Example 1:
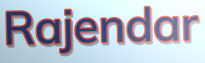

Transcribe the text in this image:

Rajendar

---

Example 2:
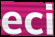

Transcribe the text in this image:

eci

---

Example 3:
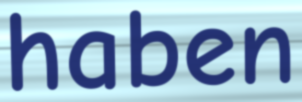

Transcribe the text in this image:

haben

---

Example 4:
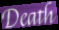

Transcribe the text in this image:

Death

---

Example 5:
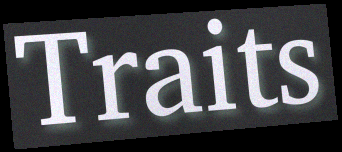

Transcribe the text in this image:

Traits